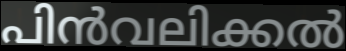
പിൻവലിക്കൽ